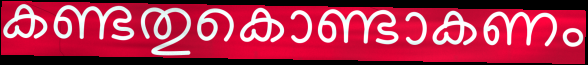
കണ്ടതുകൊണ്ടാകണം